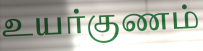
உயர்குணம்